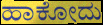
ಹಾಕೋದು